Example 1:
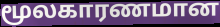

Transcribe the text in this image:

மூலகாரணமான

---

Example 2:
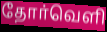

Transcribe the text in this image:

தோர்வெளி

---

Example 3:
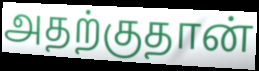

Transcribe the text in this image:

அதற்குதான்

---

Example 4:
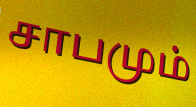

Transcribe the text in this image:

சாபமும்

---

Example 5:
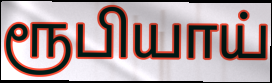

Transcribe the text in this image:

ரூபியாய்